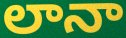
లానా